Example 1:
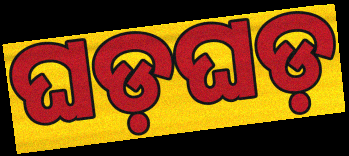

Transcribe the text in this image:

ଘଡ଼ଘଡ଼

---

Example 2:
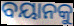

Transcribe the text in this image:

ବୟାନକୁ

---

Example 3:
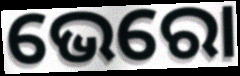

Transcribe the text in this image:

ଭେରୋ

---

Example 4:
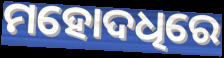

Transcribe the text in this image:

ମହୋଦଧିରେ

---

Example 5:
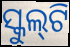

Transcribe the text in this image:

ସ୍କୁଲ୍‌ଟି